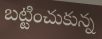
బట్టించుకున్న